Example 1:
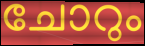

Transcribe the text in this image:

ചോറും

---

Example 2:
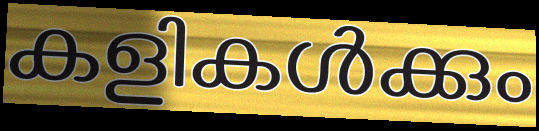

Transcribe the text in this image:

കളികൾക്കും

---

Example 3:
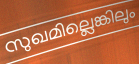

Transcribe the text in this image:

സുഖമില്ലെങ്കിലും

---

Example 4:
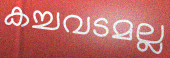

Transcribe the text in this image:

കച്ചവടമല്ല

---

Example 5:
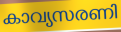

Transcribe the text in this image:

കാവ്യസരണി